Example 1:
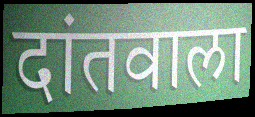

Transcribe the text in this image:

दांतवाला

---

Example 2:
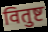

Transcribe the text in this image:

वितुष्ट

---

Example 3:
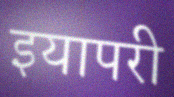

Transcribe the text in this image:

इयापरी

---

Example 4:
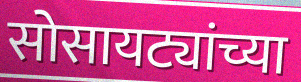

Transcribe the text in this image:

सोसायट्यांच्या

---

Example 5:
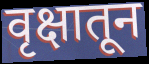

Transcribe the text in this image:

वृक्षातून